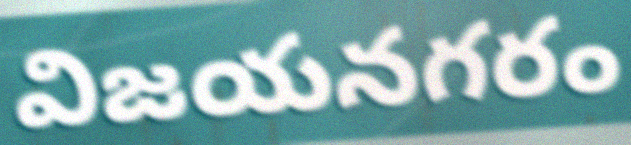
విజయనగరం